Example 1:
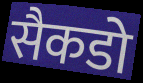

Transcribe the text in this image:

सैकडो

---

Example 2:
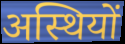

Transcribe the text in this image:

अस्थियों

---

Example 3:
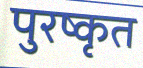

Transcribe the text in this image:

पुरष्कृत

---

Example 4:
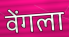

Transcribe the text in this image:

वेंगला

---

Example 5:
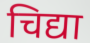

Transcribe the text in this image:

चिद्या